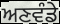
ਅਣਵੰਡੇ